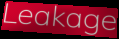
Leakage